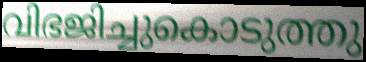
വിഭജിച്ചുകൊടുത്തു